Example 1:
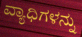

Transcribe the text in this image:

ವ್ಯಾಧಿಗಳನ್ನು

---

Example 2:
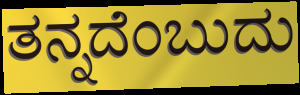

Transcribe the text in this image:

ತನ್ನದೆಂಬುದು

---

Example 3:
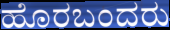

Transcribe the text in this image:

ಹೊರಬಂದರು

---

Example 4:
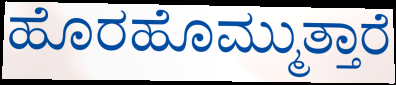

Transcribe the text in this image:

ಹೊರಹೊಮ್ಮುತ್ತಾರೆ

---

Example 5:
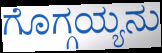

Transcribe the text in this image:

ಗೊಗ್ಗಯ್ಯನು